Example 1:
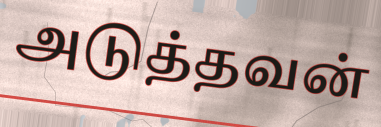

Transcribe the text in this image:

அடுத்தவன்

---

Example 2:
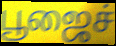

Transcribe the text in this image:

பூஜைச்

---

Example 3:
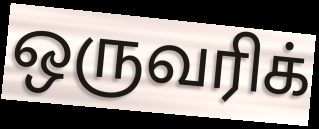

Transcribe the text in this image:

ஒருவரிக்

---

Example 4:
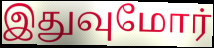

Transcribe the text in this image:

இதுவுமோர்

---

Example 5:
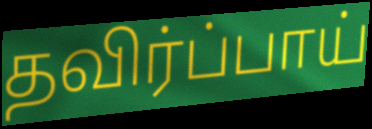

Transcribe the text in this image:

தவிர்ப்பாய்